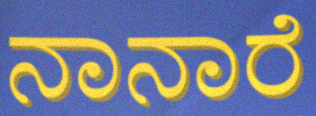
ನಾನಾರೆ